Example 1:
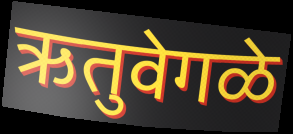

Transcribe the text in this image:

ऋतुवेगळे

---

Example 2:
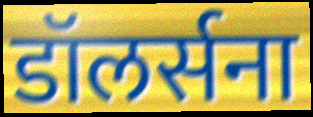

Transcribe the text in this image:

डॉलर्सना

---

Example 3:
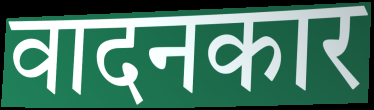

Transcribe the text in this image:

वादनकार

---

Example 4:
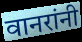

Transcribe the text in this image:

वानरांनी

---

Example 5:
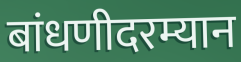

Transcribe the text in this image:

बांधणीदरम्यान